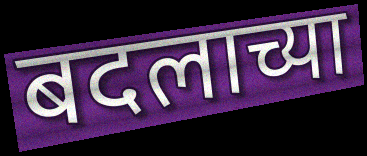
बदलाच्या